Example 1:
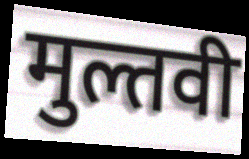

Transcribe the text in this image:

मुल्तवी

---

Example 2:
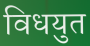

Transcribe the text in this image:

विधयुत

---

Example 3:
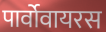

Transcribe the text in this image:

पार्वोवायरस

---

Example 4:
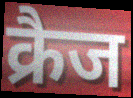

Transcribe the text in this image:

क्रैज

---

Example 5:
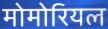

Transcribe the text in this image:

मोमोरियल